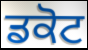
ਡਕੋਟ